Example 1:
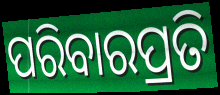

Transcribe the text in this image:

ପରିବାରପ୍ରତି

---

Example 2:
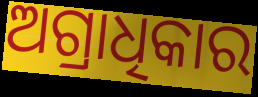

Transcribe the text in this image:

ଅଗ୍ରାଧିକାର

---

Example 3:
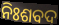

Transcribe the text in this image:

ନିଃଶବଦ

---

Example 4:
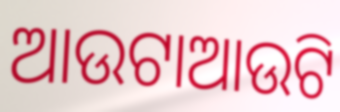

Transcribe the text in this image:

ଆଉଟାଆଉଟି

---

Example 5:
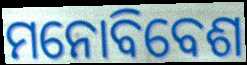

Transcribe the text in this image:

ମନୋବିବେଶ